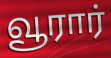
வூரார்